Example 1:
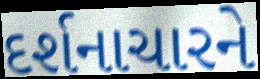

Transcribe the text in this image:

દર્શનાચારને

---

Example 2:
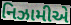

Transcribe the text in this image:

નિઝામીએ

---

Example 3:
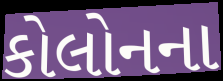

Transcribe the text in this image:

કોલોનના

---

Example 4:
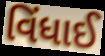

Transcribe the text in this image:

વિંધાઈ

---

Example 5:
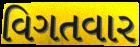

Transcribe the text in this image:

વિગતવાર